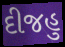
દીજહુ